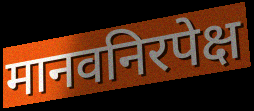
मानवनिरपेक्ष